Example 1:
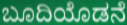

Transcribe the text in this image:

ಬೂದಿಯೊಡನೆ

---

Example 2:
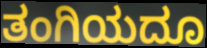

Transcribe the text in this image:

ತಂಗಿಯದೂ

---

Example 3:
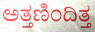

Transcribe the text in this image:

ಅತ್ತಣಿಂದಿತ್ತ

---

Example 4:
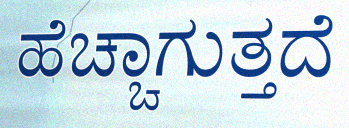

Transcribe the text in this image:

ಹೆಚ್ಚಾಗುತ್ತದೆ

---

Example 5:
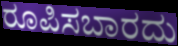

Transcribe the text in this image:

ರೂಪಿಸಬಾರದು